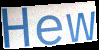
Hew